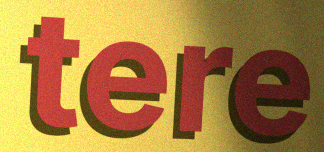
tere